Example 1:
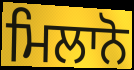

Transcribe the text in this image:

ਮਿਲਾਨੋ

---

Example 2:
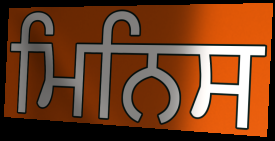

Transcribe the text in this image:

ਮਿਨਿਸ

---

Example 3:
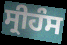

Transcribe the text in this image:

ਸ੍ਰੀਹੰਸ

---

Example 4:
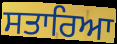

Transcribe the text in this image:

ਸਤਾਰਿਆ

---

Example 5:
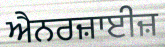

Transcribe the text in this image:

ਐਨਰਜ਼ਾਈਜ਼